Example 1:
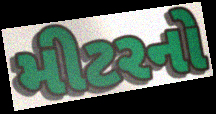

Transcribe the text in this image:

મીટરનો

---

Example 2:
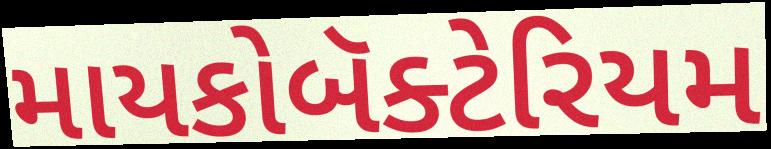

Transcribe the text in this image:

માયકોબૅક્ટેરિયમ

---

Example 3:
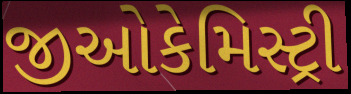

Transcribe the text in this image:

જીઓકેમિસ્ટ્રી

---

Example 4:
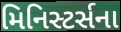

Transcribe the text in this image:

મિનિસ્ટર્સના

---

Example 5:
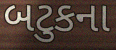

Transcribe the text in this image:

બટુકના